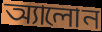
অ্যালোন